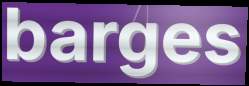
barges